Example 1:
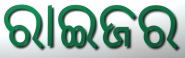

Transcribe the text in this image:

ରାଇଜର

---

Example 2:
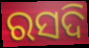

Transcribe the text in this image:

ରସଦି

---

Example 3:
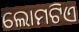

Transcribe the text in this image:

ଲୋମଟିଏ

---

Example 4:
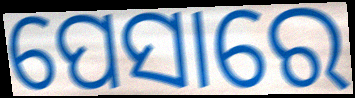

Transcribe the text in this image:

ପେସାରେ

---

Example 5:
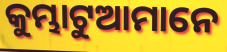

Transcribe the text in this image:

କୁମ୍ଭାଟୁଆମାନେ